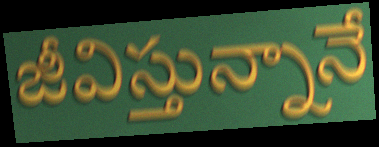
జీవిస్తున్నానే